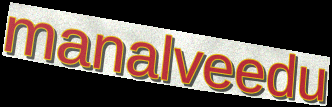
manalveedu